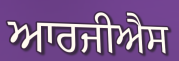
ਆਰਜੀਐਸ